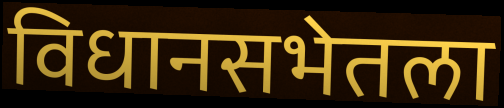
विधानसभेतला